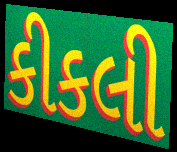
કીકલી